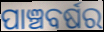
ପାଞ୍ଚବର୍ଷର